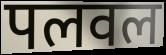
पलवल